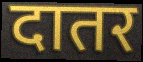
दातर